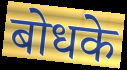
बोधके